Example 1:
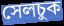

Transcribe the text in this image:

সেলচুক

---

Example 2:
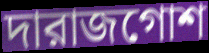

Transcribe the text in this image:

দারাজগোশ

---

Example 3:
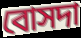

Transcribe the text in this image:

বোসদা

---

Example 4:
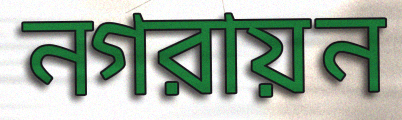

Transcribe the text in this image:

নগরায়ন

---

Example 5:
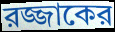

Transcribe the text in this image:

রজ্জাকের